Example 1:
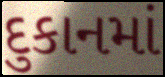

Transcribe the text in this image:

દુકાનમાં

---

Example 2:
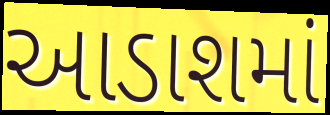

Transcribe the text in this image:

આડાશમાં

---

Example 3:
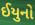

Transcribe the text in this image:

ઈયુનો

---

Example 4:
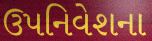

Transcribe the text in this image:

ઉપનિવેશના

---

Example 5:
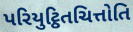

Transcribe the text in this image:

પરિયુટ્ઠિતચિત્તોતિ